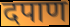
दपाण